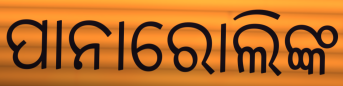
ପାନାରୋଲିଙ୍କ